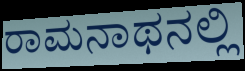
ರಾಮನಾಥನಲ್ಲಿ